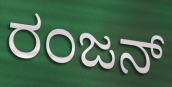
ರಂಜನ್